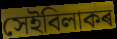
সেইবিলাকৰ